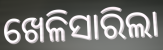
ଖେଳିସାରିଲା